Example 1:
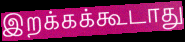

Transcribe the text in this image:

இறக்கக்கூடாது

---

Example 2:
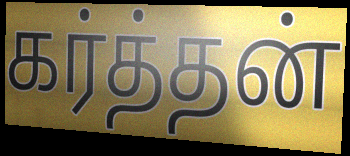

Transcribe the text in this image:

கர்த்தன்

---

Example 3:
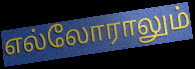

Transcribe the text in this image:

எல்லோராலும்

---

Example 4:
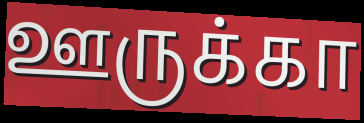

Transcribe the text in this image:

ஊருக்கா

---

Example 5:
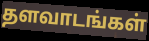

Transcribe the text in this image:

தளவாடங்கள்